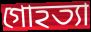
গোহত্যা